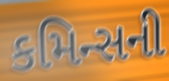
કમિન્સની